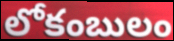
లోకంబులం